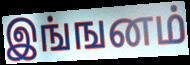
இங்ஙனம்